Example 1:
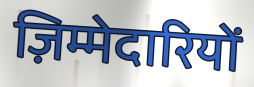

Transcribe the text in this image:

ज़िम्मेदारियों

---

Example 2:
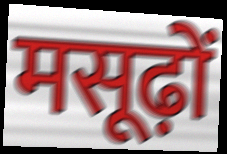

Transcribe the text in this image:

मसूढ़ों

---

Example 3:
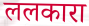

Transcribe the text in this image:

ललकारा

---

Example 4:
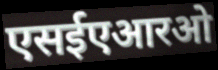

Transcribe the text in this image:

एसईएआरओ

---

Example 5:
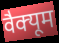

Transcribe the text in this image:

वैक्‍यूम